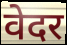
वेदर